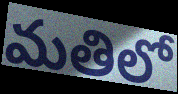
మతిలో